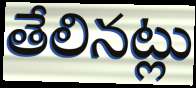
తేలినట్లు